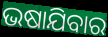
ଭଷାଯିବାର